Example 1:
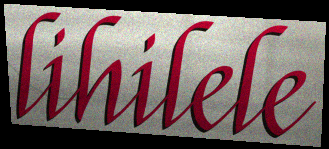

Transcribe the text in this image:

lihilele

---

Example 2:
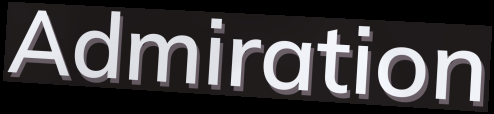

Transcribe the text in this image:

Admiration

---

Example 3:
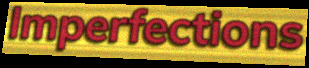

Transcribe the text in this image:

Imperfections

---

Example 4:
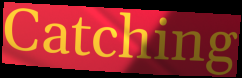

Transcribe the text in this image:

Catching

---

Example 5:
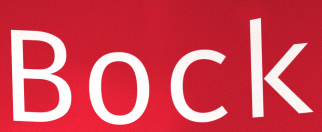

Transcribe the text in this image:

Bock